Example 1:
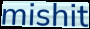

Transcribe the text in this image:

mishit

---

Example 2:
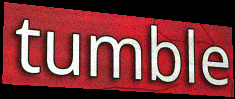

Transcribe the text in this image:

tumble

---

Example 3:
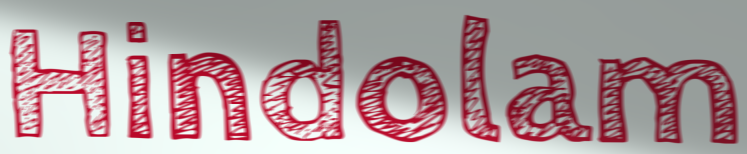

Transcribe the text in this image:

Hindolam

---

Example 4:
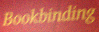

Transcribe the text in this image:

Bookbinding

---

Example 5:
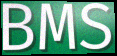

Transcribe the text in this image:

BMS